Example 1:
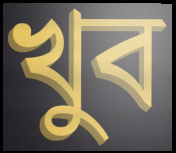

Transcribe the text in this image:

খুব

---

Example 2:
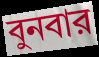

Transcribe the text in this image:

বুনবার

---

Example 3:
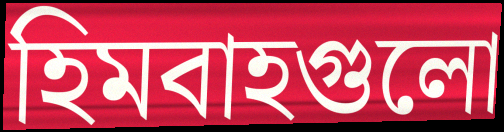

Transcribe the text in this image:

হিমবাহগুলো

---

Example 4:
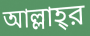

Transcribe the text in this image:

আল্লাহ্‌র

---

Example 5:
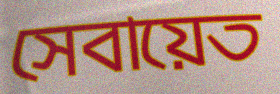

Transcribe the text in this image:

সেবায়েত